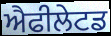
ਐਫੀਲੇਟਡ